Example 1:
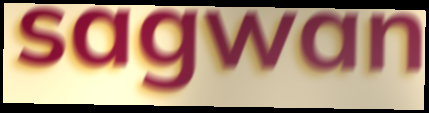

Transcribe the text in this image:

sagwan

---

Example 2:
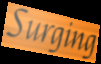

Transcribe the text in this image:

Surging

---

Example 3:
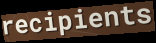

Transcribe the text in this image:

recipients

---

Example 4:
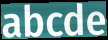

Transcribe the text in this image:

abcde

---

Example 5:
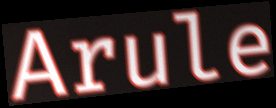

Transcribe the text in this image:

Arule